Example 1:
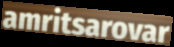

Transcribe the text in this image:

amritsarovar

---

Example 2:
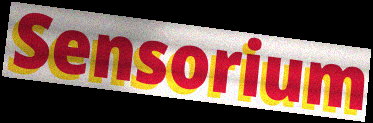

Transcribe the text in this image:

Sensorium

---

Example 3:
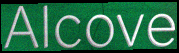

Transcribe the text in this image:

Alcove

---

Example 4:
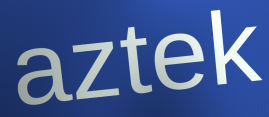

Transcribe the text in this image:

aztek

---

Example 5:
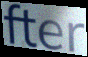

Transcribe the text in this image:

fter